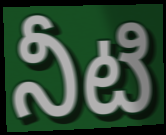
నీటి